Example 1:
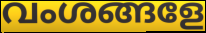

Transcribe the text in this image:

വംശങ്ങളേ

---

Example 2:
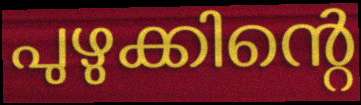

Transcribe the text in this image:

പുഴുക്കിന്റെ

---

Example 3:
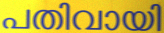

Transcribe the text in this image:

പതിവായി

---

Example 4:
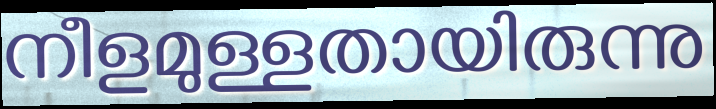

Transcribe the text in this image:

നീളമുള്ളതായിരുന്നു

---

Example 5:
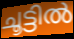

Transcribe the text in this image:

ചൂട്ടിൽ